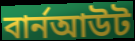
বার্নআউট